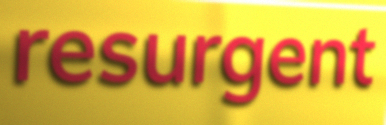
resurgent